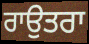
ਰਾਉਤਰਾ